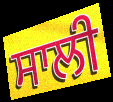
ਸਾਲੀ